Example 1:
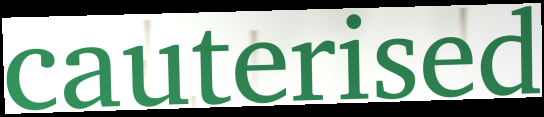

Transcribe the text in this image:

cauterised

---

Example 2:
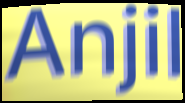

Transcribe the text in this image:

Anjil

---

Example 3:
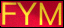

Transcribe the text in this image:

FYM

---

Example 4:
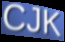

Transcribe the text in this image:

CJK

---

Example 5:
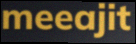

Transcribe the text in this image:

meeajit